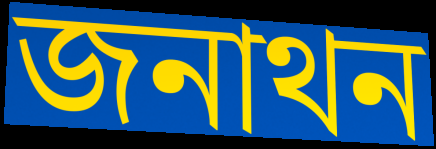
জনাথন